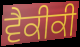
ਵੈਕੀਕੀ